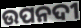
ଉପନଦୀ